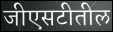
जीएसटीतील